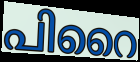
പിറൈ